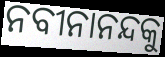
ନବୀନାନନ୍ଦକୁ